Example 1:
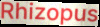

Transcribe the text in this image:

Rhizopus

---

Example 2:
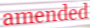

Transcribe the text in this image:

amended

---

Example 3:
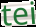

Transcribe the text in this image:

tei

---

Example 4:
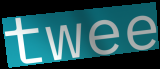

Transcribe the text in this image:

twee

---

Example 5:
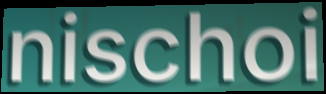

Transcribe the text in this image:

nischoi